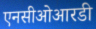
एनसीओआरडी